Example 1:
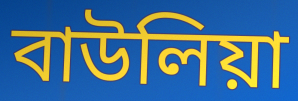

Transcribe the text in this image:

বাউলিয়া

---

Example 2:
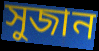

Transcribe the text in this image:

সুজান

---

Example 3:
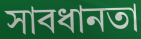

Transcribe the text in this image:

সাবধানতা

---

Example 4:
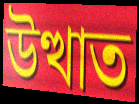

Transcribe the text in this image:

উত্থাত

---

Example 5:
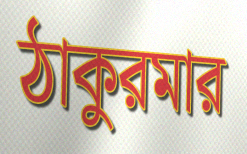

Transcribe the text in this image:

ঠাকুরমার